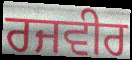
ਰਜਵੀਰ